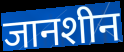
जानशीन